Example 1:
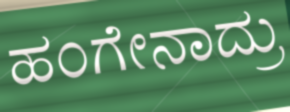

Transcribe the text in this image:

ಹಂಗೇನಾದ್ರು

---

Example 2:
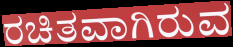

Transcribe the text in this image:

ರಚಿತವಾಗಿರುವ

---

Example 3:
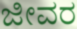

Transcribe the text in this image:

ಜೀವರ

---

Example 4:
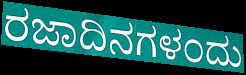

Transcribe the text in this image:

ರಜಾದಿನಗಳಂದು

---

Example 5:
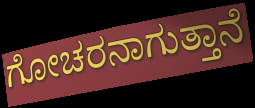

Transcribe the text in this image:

ಗೋಚರನಾಗುತ್ತಾನೆ